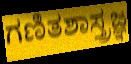
ಗಣಿತಶಾಸ್ತ್ರಜ್ಞ